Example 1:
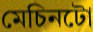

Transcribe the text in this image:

মেচিনটো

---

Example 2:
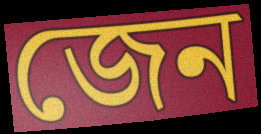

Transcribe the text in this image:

জেন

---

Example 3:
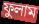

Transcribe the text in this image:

ফুলাম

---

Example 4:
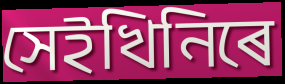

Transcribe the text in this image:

সেইখিনিৰে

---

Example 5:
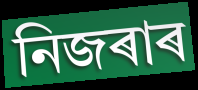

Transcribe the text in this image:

নিজৰাৰ